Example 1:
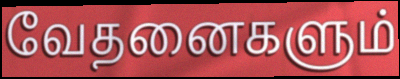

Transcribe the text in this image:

வேதனைகளும்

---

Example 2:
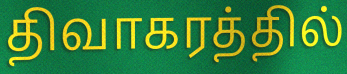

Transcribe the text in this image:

திவாகரத்தில்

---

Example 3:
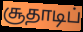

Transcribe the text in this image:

சூதாடிப்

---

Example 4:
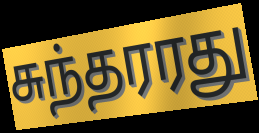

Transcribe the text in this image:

சுந்தரரது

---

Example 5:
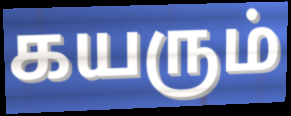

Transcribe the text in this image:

கயரும்